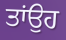
ਤਾਂਉਹ